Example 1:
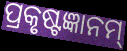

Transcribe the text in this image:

ପ୍ରକୃଷ୍ଟଜ୍ଞାନମ୍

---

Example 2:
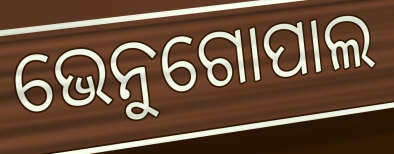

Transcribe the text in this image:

ଭେନୁଗୋପାଲ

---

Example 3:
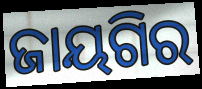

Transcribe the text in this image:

ଜାୟଗିର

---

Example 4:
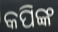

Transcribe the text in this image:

କପିଙ୍କ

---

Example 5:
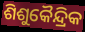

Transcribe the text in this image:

ଶିଶୁକୈନ୍ଦ୍ରିକ